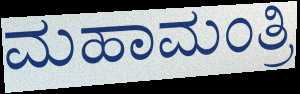
ಮಹಾಮಂತ್ರಿ